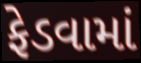
ફેડવામાં